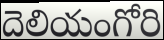
దెలియంగోరి